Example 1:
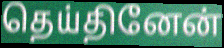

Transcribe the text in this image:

தெய்தினேன்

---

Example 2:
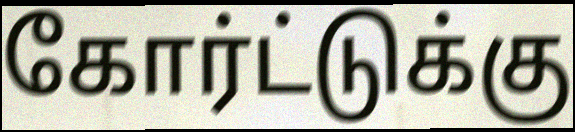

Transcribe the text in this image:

கோர்ட்டுக்கு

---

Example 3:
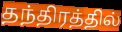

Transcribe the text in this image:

தந்திரத்தில்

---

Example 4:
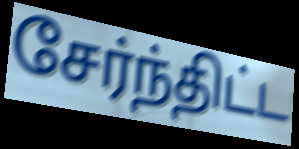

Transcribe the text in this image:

சேர்ந்திட்ட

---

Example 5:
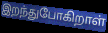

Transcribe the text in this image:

இறந்துபோகிறாள்